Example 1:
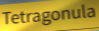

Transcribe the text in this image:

Tetragonula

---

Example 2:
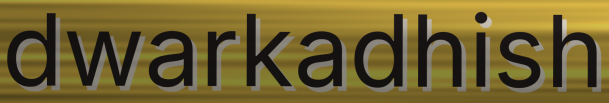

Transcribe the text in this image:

dwarkadhish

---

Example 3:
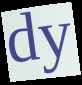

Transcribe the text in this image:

dy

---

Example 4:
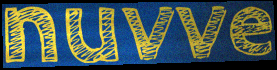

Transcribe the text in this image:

nuvve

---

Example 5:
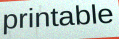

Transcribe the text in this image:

printable